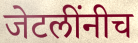
जेटलींनीच